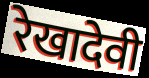
रेखादेवी